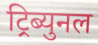
ट्रिब्युनल